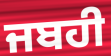
ਜਬਹੀ